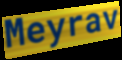
Meyrav